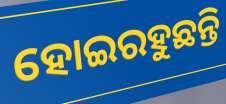
ହୋଇରହୁଛନ୍ତି